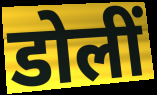
डोलीं